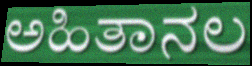
ಅಹಿತಾನಲ